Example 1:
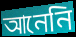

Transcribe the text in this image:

আনেনি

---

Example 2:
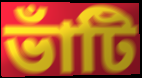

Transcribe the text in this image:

ভাঁটি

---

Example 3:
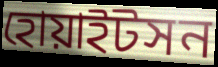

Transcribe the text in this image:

হোয়াইটসন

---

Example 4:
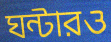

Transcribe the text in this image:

ঘন্টারও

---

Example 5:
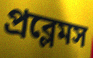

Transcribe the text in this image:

প্রব্লেমস